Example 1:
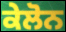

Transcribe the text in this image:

ਕੇਲੋਨ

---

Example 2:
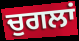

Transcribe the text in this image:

ਚੁਗਲਾਂ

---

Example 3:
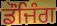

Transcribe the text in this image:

ਡੌਜਿੰਗ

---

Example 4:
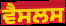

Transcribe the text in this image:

ਵੈਸਲਸ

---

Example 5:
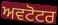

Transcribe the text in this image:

ਅਵਟੋਟਰ